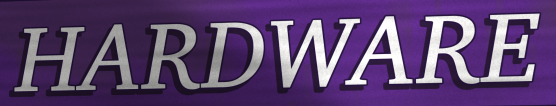
HARDWARE